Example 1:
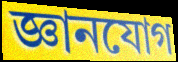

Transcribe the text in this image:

জ্ঞানযোগ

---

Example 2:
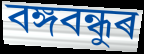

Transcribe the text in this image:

বঙ্গবন্ধুৰ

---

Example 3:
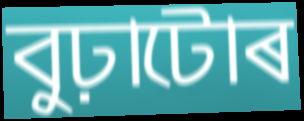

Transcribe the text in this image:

বুঢ়াটোৰ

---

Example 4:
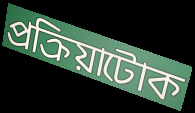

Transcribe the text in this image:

প্ৰক্ৰিয়াটোক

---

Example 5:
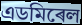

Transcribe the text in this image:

এডমিৰেল